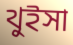
থুইসা